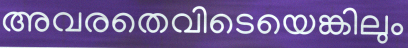
അവരതെവിടെയെങ്കിലും